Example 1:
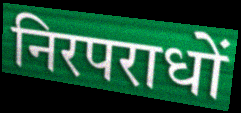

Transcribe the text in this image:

निरपराधों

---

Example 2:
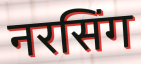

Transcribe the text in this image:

नरसिंग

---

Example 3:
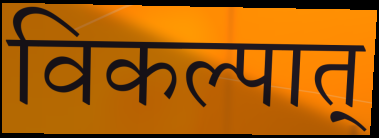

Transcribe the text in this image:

विकल्पात्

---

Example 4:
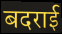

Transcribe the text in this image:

बदराई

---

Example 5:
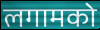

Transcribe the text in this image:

लगामको